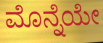
ಮೊನ್ನೆಯೇ